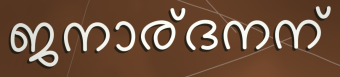
ജനാര്ദനന്